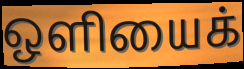
ஒளியைக்